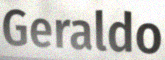
Geraldo